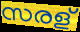
സരള്